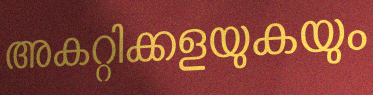
അകറ്റിക്കളയുകയും